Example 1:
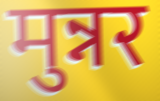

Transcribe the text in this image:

मुन्नर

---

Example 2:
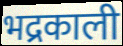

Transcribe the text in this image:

भद्रकाली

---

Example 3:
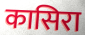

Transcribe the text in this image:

कासिरा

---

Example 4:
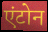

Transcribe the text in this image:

एंटोन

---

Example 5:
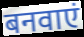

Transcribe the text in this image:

बनवाएं